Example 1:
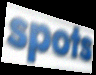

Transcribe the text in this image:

spots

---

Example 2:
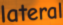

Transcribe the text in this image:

lateral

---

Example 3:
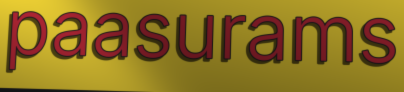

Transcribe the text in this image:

paasurams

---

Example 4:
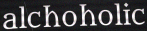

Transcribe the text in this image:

alchoholic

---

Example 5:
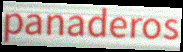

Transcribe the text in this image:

panaderos